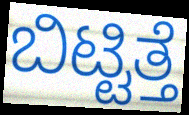
ಬಿಟ್ಟಿತ್ತೆ